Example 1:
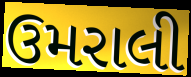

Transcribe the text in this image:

ઉમરાલી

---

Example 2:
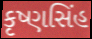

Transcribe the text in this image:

કૃષ્ણસિંહ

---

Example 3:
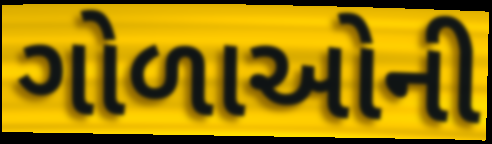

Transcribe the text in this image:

ગોળાઓની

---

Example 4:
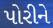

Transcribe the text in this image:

પોરીને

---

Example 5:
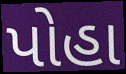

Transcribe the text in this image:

પોહા